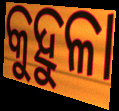
କୁହୁଳା